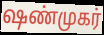
ஷண்முகர்